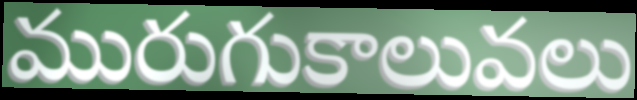
మురుగుకాలువలు